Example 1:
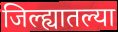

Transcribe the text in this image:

जिल्ह्यातल्या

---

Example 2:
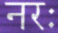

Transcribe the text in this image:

नरः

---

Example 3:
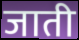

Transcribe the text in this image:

जाती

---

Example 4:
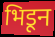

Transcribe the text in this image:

भिडून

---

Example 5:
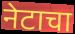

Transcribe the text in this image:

नेटाचा